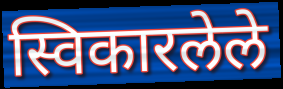
स्विकारलेले